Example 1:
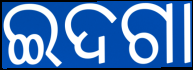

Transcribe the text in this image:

ଇଦଗା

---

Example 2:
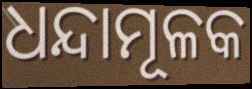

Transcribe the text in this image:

ଧନ୍ଦାମୂଳକ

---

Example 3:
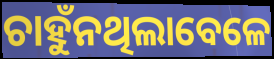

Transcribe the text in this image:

ଚାହୁଁନଥିଲାବେଳେ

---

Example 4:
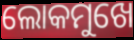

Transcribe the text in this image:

ଲୋକମୁଖେ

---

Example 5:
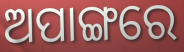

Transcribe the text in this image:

ଅପାଙ୍ଗରେ